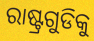
ରାଷ୍ଟ୍ରଗୁଡିକୁ